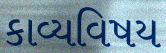
કાવ્યવિષય